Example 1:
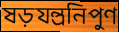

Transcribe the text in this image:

ষড়যন্ত্রনিপুণ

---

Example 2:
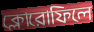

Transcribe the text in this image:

ক্লোরোফিলে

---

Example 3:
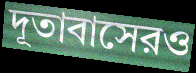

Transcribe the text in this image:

দূতাবাসেরও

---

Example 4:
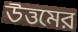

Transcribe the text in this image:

উত্তমের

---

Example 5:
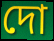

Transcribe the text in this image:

দো